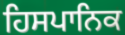
ਹਿਸਪਾਨਿਕ